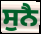
ਸੁਨੈ